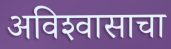
अविश्‍वासाचा